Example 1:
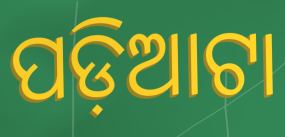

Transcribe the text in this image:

ପଡ଼ିଆଟା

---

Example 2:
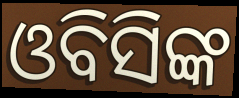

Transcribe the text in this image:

ଓବିସିଙ୍କ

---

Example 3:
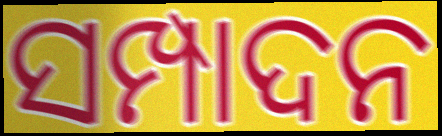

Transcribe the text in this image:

ସମ୍ପାଦନ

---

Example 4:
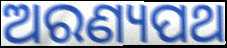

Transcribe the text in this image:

ଅରଣ୍ୟପଥ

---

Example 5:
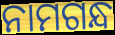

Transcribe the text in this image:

ନାମଗନ୍ଧ